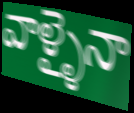
వాళ్ళైనా